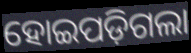
ହୋଇପଡ଼ିଗଲା